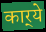
कार्ये